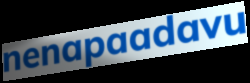
nenapaadavu